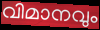
വിമാനവും